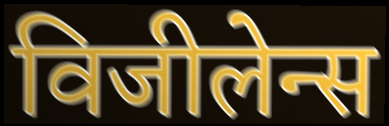
विजीलेन्स